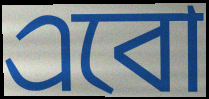
এবো